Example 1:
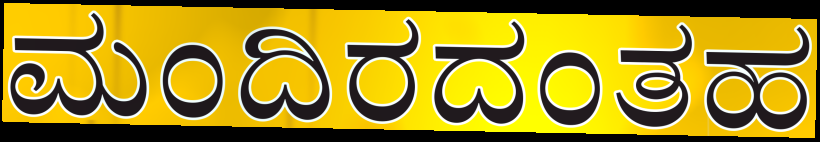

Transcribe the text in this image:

ಮಂದಿರದಂತಹ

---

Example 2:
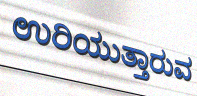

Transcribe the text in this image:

ಉರಿಯುತ್ತಾರುವ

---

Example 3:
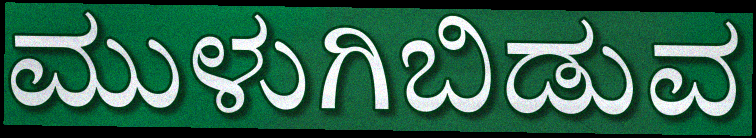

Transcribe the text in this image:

ಮುಳುಗಿಬಿಡುವ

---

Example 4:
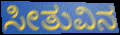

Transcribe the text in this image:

ಸೀತುವಿನ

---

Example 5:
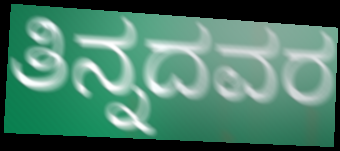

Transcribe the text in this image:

ತಿನ್ನದವರ